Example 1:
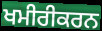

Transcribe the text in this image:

ਖਮੀਰੀਕਰਨ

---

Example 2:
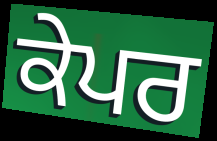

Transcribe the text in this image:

ਕੇਪਰ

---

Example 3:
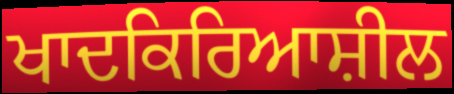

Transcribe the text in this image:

ਖਾਦਕਿਰਿਆਸ਼ੀਲ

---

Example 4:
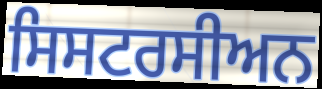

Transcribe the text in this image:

ਸਿਸਟਰਸੀਅਨ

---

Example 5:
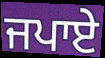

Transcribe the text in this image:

ਜਪਾਏ